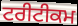
ਟਰੀਟੀਕਮ